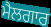
ਮੈਲਗਾਰ